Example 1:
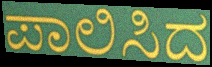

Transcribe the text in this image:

ಪಾಲಿಸಿದ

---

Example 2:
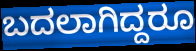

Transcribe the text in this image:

ಬದಲಾಗಿದ್ದರೂ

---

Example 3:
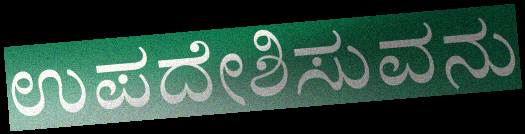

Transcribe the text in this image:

ಉಪದೇಶಿಸುವನು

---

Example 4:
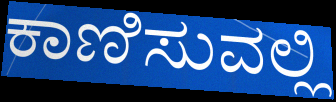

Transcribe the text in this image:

ಕಾಣಿಸುವಲ್ಲಿ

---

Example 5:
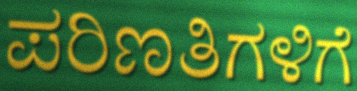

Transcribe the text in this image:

ಪರಿಣತಿಗಳಿಗೆ